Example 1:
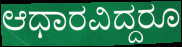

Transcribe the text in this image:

ಆಧಾರವಿದ್ದರೂ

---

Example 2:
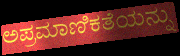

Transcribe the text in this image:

ಅಪ್ರಮಾಣಿಕತೆಯನ್ನು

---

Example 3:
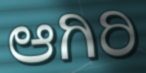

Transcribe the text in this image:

ಆಗಿರಿ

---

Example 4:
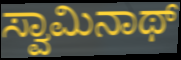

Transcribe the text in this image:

ಸ್ವಾಮಿನಾಥ್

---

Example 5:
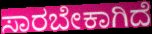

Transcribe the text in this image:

ಸಾರಬೇಕಾಗಿದೆ